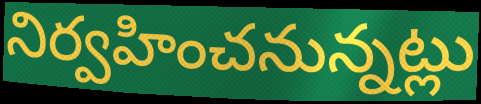
నిర్వహించనున్నట్లు